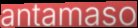
antamaso